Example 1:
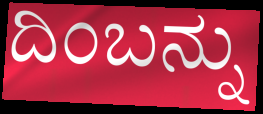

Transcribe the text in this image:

ದಿಂಬನ್ನು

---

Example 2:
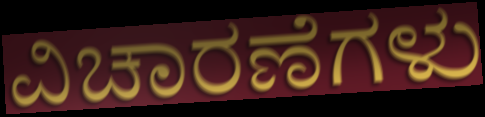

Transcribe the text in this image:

ವಿಚಾರಣೆಗಳು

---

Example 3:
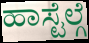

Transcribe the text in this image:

ಹಾಸ್ಟೆಲ್ಗೆ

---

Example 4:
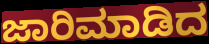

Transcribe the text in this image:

ಜಾರಿಮಾಡಿದ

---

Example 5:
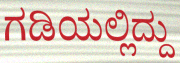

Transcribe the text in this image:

ಗಡಿಯಲ್ಲಿದ್ದು